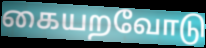
கையறவோடு